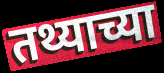
तथ्याच्या